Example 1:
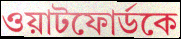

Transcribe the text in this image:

ওয়াটফোর্ডকে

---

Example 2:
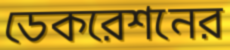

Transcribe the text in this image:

ডেকরেশনের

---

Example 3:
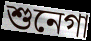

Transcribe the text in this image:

শুনেগা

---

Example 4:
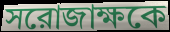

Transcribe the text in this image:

সরোজাক্ষকে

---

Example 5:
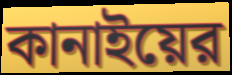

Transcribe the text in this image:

কানাইয়ের